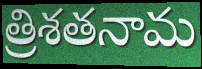
త్రిశతనామ